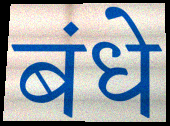
बंधे